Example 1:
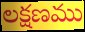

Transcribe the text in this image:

లక్షణము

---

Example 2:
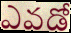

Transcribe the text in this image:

ఎవడో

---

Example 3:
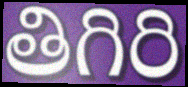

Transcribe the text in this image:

తిగిరి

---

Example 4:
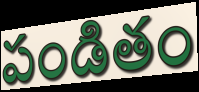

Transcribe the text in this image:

పండితం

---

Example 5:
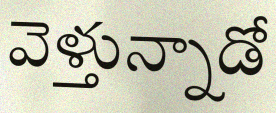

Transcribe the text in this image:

వెళ్తున్నాడో